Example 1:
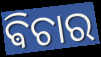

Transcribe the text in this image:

ଵିଚାର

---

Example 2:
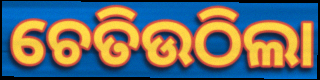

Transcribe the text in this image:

ଚେତିଉଠିଲା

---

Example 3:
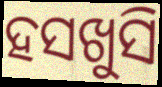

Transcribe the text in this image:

ହସଖୁସି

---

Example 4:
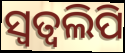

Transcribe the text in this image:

ସ୍ଵତ୍ଵଲିପି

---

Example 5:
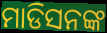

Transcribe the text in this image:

ମାଡିସନଙ୍କ